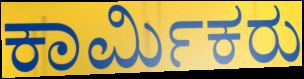
ಕಾರ್ಮಿಕರು